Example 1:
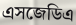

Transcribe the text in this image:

এসজেডিএ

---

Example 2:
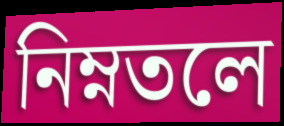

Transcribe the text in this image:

নিম্নতলে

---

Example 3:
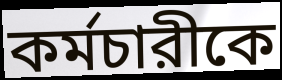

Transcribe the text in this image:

কর্মচারীকে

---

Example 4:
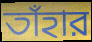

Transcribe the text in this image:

তাঁহার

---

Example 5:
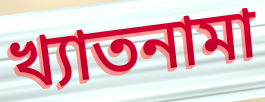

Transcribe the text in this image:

খ্যাতনামা